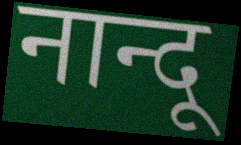
नान्दू